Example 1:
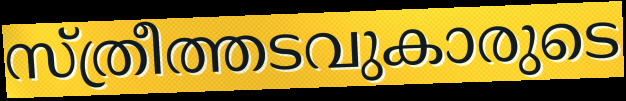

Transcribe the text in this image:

സ്ത്രീത്തടവുകാരുടെ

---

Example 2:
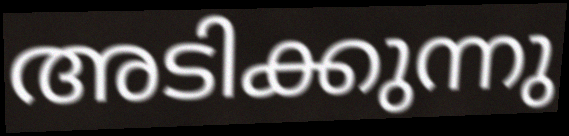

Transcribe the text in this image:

അടിക്കുന്നു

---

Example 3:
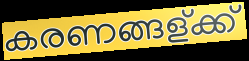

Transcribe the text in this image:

കരണങ്ങള്ക്ക്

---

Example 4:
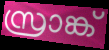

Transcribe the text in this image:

സ്രാങ്ക്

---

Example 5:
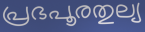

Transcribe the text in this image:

പ്രഭപൂരതുല്യ